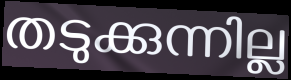
തടുക്കുന്നില്ല